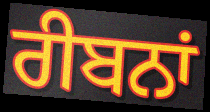
ਰੀਬਨਾਂ